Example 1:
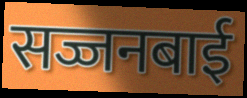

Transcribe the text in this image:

सज्जनबाई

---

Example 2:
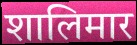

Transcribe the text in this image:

शालिमार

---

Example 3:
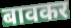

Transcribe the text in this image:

बावकर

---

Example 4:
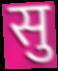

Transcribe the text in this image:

सु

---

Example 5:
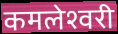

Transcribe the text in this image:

कमलेश्वरी